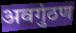
अवगुंठण